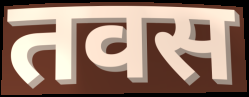
तवस